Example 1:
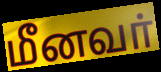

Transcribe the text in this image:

மீனவர்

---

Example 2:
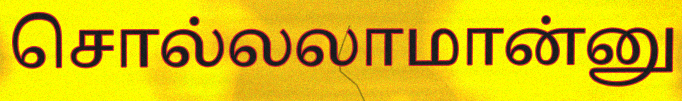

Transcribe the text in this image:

சொல்லலாமான்னு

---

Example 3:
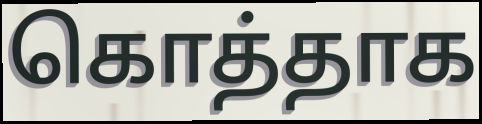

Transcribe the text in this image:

கொத்தாக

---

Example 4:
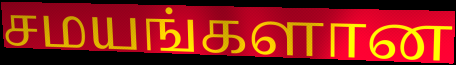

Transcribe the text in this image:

சமயங்களான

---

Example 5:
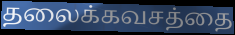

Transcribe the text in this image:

தலைக்கவசத்தை